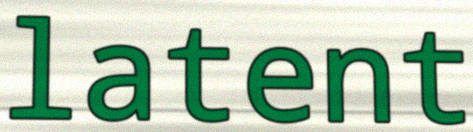
latent